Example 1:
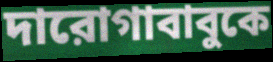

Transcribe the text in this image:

দারোগাবাবুকে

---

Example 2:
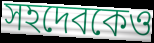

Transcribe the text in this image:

সহদেবকেও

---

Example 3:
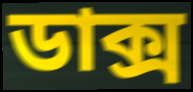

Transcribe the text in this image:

ডাক্স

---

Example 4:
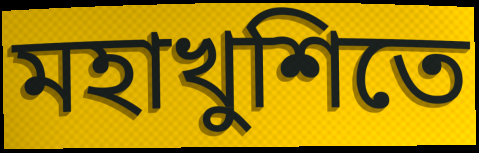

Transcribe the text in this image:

মহাখুশিতে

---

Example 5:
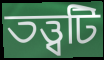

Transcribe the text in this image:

তত্ত্বটি